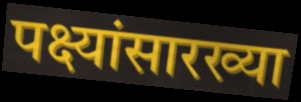
पक्ष्यांसारख्या